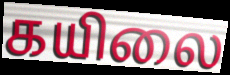
கயிலை